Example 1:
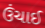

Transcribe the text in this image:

ઉંચાઈ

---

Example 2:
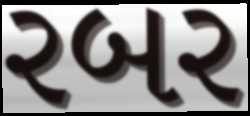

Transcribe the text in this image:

રબર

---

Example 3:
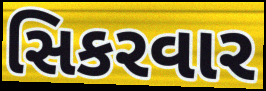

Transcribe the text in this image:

સિકરવાર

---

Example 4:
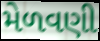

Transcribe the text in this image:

મેળવણી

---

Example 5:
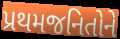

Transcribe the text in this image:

પ્રથમજનિતોને